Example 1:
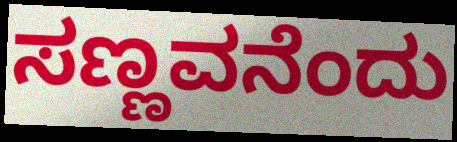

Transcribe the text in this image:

ಸಣ್ಣವನೆಂದು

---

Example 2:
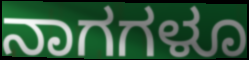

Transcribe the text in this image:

ನಾಗಗಳೂ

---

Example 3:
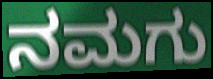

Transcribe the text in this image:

ನಮಗು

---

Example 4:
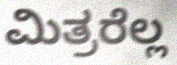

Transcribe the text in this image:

ಮಿತ್ರರೆಲ್ಲ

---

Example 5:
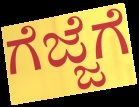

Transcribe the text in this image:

ಗೆಜ್ಜೆಗೆ